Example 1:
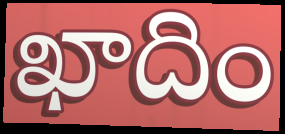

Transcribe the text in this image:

ఖాదిం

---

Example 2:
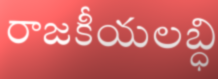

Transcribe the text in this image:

రాజకీయలబ్ధి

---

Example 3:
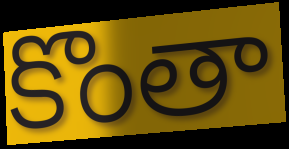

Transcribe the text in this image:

కొంతా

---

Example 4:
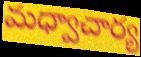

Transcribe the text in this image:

మధ్వాచార్య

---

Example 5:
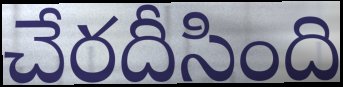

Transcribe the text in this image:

చేరదీసింది